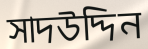
সাদউদ্দিন